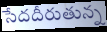
సేదదీరుతున్న